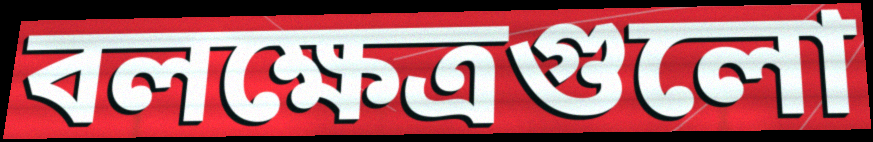
বলক্ষেত্রগুলো